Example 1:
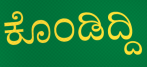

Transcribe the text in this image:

ಕೊಂಡಿದ್ದಿ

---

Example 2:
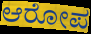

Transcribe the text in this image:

ಆರೋಪ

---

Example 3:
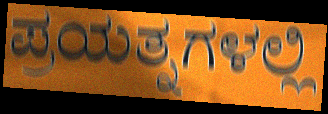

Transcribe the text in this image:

ಪ್ರಯತ್ನಗಳಲ್ಲಿ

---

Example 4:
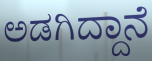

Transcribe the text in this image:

ಅಡಗಿದ್ದಾನೆ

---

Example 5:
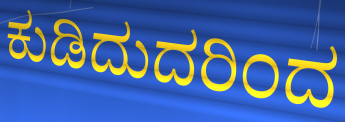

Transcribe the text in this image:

ಕುಡಿದುದರಿಂದ